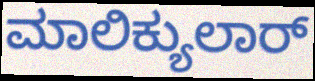
ಮಾಲಿಕ್ಯುಲಾರ್